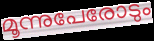
മൂന്നുപേരോടും